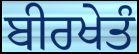
ਬੀਰਖੇਤੰ